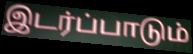
இடர்ப்பாடும்